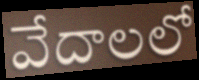
వేదాలలో